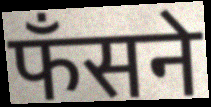
फँसने